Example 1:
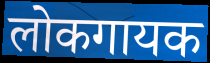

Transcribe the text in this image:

लोकगायक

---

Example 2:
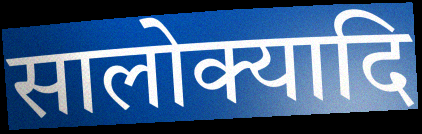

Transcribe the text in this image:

सालोक्यादि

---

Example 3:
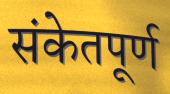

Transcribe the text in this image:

संकेतपूर्ण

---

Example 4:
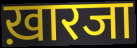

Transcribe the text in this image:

ख़ारजा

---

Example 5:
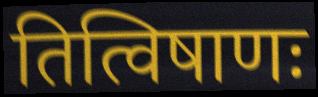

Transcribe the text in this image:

तित्विषाणः